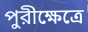
পুরীক্ষেত্রে